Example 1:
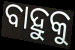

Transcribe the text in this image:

ବାହୁକୁ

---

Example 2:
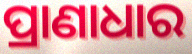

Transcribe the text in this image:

ପ୍ରାଣାଧାର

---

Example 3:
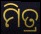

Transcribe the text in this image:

ମିତ୍ର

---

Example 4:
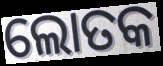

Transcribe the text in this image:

ଲୋତକ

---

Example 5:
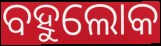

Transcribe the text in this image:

ବହୁଲୋକ